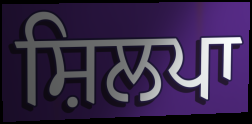
ਸ਼ਿਲਪਾ